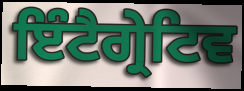
ਇੰਟੈਗ੍ਰੇਟਿਵ